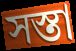
সস্তা